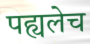
पह्यलेच